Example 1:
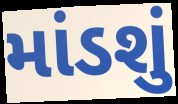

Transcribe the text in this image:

માંડશું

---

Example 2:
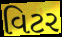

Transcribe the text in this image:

વિટર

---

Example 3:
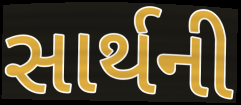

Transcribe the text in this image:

સાર્થની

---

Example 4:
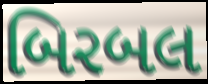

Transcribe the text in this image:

બિરબલ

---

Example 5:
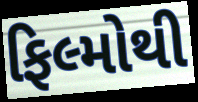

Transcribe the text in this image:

ફિલ્મોથી